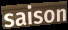
saison